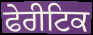
ਫੇਰੀਟਿਕ